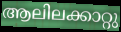
ആലിലക്കാറ്റു